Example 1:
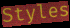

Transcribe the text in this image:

Styles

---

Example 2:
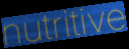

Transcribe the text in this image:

nutritive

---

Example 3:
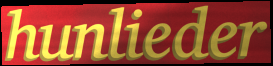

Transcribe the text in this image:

hunlieder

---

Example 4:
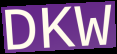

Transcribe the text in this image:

DKW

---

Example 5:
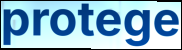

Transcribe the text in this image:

protege